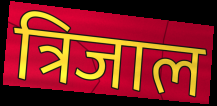
त्रिजाल